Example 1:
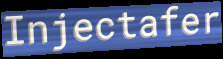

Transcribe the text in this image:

Injectafer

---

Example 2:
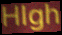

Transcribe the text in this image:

HIgh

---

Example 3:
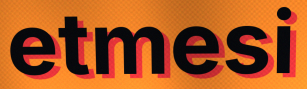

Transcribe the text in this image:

etmesi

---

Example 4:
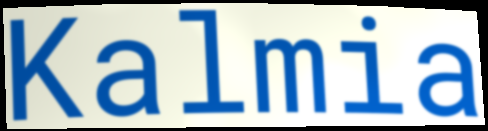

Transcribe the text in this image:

Kalmia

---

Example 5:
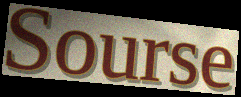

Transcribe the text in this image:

Sourse